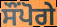
ਸੌਂਪੋਗੇ